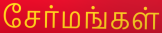
சேர்மங்கள்